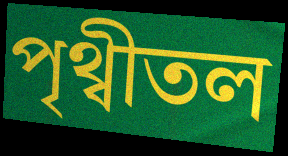
পৃথ্বীতল